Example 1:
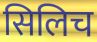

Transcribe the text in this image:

सिलिच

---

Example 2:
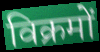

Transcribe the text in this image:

विक्रमों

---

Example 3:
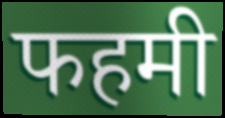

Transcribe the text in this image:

फहमी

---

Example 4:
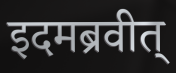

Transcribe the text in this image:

इदमब्रवीत्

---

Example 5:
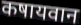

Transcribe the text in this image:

कषायवान